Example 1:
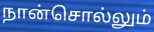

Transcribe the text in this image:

நான்சொல்லும்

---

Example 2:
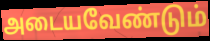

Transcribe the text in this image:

அடையவேண்டும்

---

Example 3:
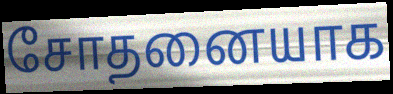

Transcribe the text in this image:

சோதனையாக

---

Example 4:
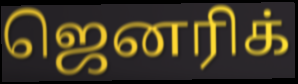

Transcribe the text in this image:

ஜெனரிக்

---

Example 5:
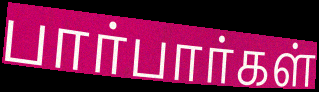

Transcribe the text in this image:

பார்பார்கள்